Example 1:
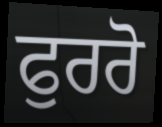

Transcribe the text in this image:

ਫੁਰਰੋ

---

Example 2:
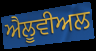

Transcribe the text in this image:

ਐਲੂਵੀਅਲ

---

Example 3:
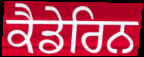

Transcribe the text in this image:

ਕੈਡੇਰਿਨ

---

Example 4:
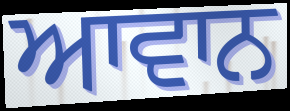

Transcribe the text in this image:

ਆਵਾਨ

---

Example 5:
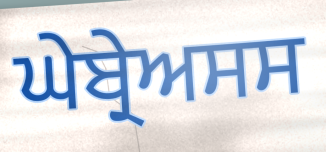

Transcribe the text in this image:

ਘੇਬ੍ਰੇਅਸਸ